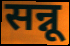
सन्नू